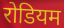
रोडियम